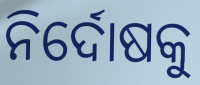
ନିର୍ଦୋଷକୁ